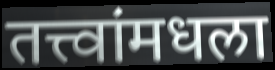
तत्त्वांमधला